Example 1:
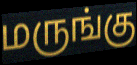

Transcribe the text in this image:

மருங்கு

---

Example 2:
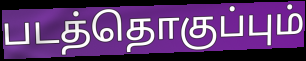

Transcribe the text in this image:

படத்தொகுப்பும்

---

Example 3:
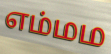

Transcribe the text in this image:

எம்மம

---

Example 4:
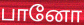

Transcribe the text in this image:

பானோ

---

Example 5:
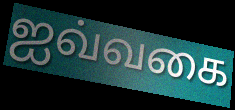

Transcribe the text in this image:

ஐவ்வகை